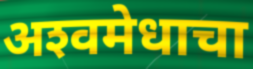
अश्‍वमेधाचा